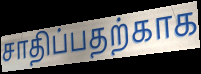
சாதிப்பதற்காக